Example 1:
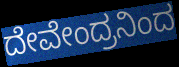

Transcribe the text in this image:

ದೇವೇಂದ್ರನಿಂದ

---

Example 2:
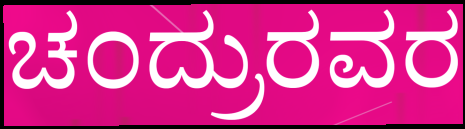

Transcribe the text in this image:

ಚಂದ್ರುರವರ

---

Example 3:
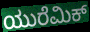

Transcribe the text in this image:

ಯುರೆಮಿಕ್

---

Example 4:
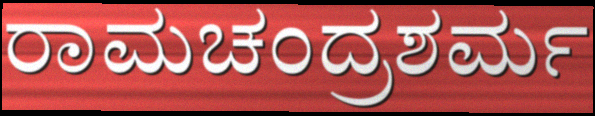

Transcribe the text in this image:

ರಾಮಚಂದ್ರಶರ್ಮ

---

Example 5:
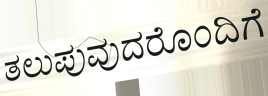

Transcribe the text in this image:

ತಲುಪುವುದರೊಂದಿಗೆ